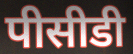
पीसीडी